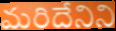
మరిదేనిని